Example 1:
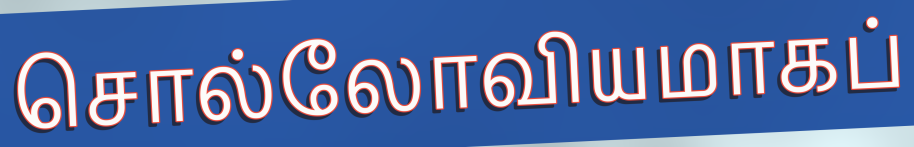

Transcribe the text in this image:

சொல்லோவியமாகப்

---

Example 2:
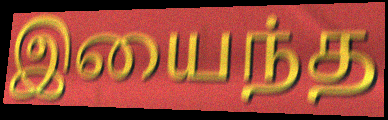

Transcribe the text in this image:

இயைந்த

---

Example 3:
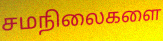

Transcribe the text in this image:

சமநிலைகளை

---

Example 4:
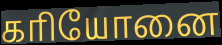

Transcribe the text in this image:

கரியோனை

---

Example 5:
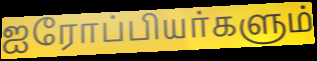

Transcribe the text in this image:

ஐரோப்பியர்களும்